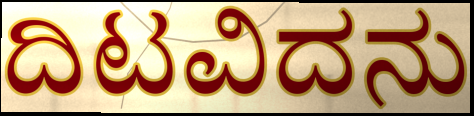
ದಿಟವಿದನು